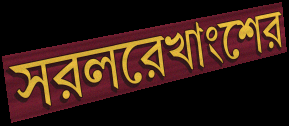
সরলরেখাংশের